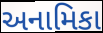
અનામિકા